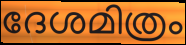
ദേശമിത്രം